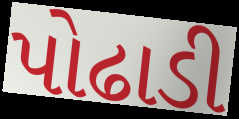
પોઢાડી